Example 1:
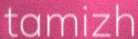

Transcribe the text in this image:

tamizh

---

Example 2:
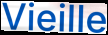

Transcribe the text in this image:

Vieille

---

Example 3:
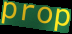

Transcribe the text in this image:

prop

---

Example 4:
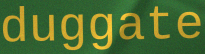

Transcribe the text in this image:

duggate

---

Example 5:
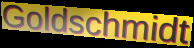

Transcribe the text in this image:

Goldschmidt